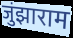
जुंझाराम